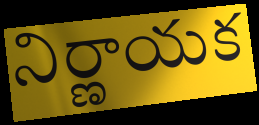
నిర్ణాయక